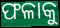
ଫଳାକୁ